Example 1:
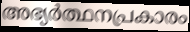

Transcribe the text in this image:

അഭ്യർത്ഥനപ്രകാരം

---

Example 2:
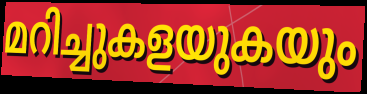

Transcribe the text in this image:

മറിച്ചുകളയുകയും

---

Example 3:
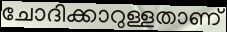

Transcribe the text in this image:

ചോദിക്കാറുള്ളതാണ്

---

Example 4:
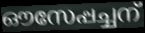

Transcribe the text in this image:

ഔസേപ്പച്ചന്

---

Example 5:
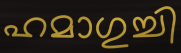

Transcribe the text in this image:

ഹമാഗുച്ചി